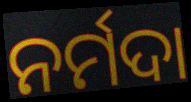
ନର୍ମଦା